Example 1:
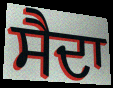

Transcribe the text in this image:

ਸੈਦਾ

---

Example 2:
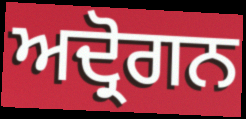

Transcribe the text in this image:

ਅਦ੍ਰੋਗਨ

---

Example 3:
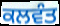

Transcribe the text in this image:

ਕਲਵੰਤ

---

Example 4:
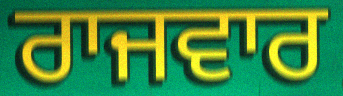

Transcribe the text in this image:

ਰਾਜਵਾਰ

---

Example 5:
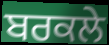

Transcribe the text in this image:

ਬਰਕਲੇ